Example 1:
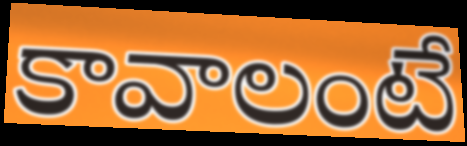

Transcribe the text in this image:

కావాలంటే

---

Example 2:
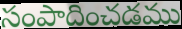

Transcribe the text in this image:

సంపాదించడము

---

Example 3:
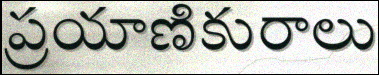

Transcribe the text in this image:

ప్రయాణికురాలు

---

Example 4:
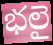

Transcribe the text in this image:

భలై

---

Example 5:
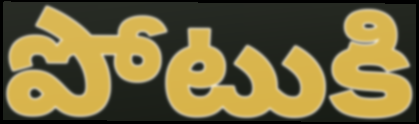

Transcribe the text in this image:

పోటుకి